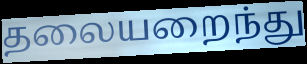
தலையறைந்து